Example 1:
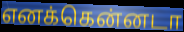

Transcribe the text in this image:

எனக்கென்னடா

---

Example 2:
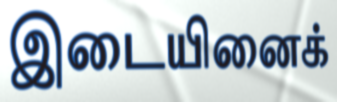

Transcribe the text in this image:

இடையினைக்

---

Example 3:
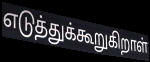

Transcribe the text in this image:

எடுத்துக்கூறுகிறாள்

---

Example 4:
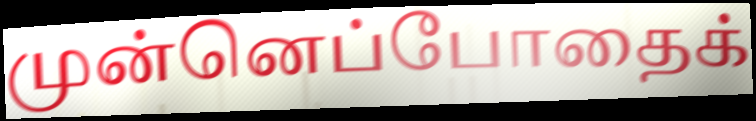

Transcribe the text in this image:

முன்னெப்போதைக்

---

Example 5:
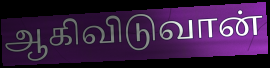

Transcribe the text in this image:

ஆகிவிடுவான்